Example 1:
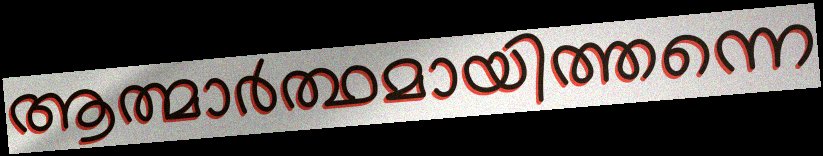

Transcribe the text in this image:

ആത്മാർത്ഥമായിത്തന്നെ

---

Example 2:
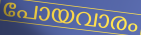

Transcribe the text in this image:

പോയവാരം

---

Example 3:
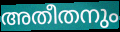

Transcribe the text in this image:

അതീതനും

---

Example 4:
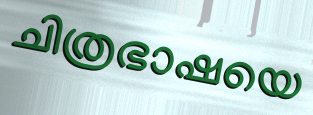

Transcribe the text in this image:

ചിത്രഭാഷയെ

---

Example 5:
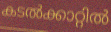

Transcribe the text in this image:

കടൽക്കാറ്റിൽ